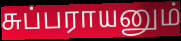
சுப்பராயனும்